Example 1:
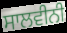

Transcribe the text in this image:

ਸਾਲਵੀਨੀ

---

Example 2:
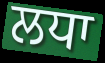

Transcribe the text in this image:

ਲਧਾ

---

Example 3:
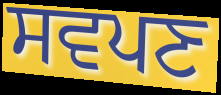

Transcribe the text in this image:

ਸਵਪਣ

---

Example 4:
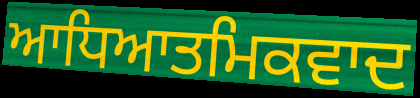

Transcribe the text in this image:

ਆਧਿਆਤਮਿਕਵਾਦ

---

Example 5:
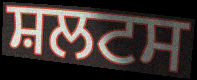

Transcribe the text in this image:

ਸ਼ਲਟਸ